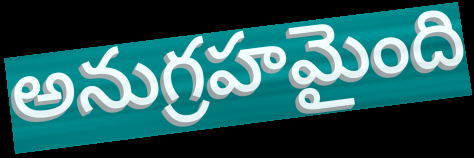
అనుగ్రహమైంది